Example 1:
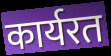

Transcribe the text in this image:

कार्यरत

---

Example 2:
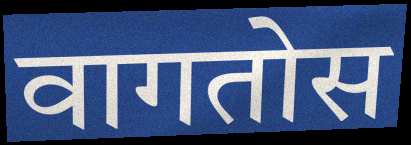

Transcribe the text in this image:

वागतोस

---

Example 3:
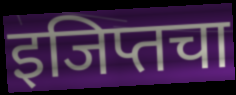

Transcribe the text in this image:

इजिप्तचा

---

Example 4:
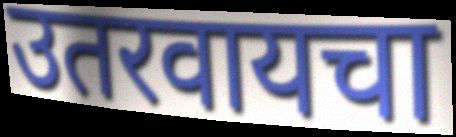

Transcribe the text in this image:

उतरवायचा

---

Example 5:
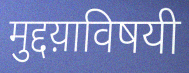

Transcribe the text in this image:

मुद्दय़ाविषयी